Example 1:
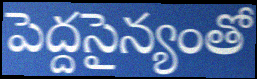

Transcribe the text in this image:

పెద్దసైన్యంతో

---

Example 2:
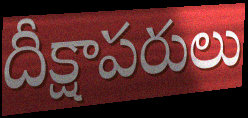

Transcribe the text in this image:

దీక్షాపరులు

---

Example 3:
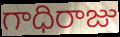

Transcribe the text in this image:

గాధిరాజు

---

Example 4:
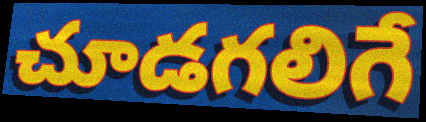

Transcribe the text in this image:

చూడగలిగే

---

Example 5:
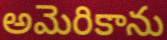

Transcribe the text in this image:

అమెరికాను